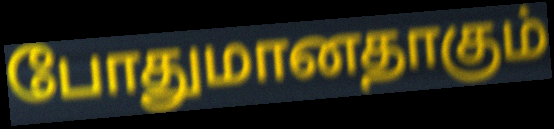
போதுமானதாகும்